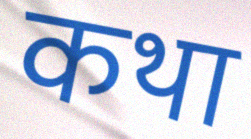
कथा